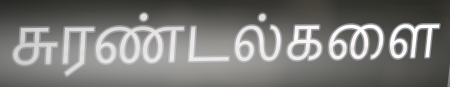
சுரண்டல்களை